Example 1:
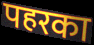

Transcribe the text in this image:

पहरका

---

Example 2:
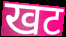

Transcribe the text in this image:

खट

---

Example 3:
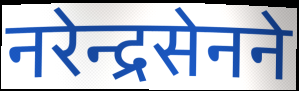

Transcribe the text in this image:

नरेन्द्रसेनने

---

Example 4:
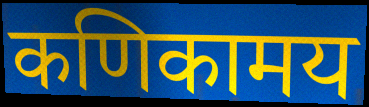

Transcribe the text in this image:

कणिकामय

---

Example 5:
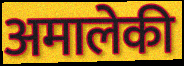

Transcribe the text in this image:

अमालेकी